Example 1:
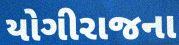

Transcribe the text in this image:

યોગીરાજના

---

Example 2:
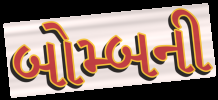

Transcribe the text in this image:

બોમ્બની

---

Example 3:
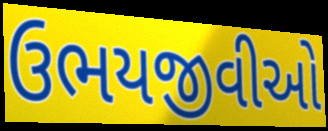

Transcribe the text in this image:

ઉભયજીવીઓ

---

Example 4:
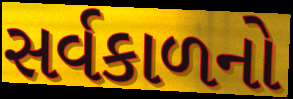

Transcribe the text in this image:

સર્વકાળનો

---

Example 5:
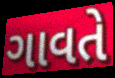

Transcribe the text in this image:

ગાવતે